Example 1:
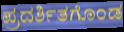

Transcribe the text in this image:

ಪ್ರದರ್ಶಿತಗೊಂಡ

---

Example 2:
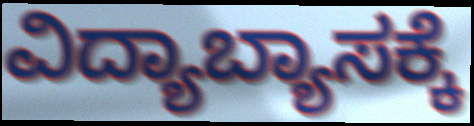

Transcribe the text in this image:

ವಿದ್ಯಾಬ್ಯಾಸಕ್ಕೆ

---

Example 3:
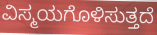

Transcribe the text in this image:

ವಿಸ್ಮಯಗೊಳಿಸುತ್ತದೆ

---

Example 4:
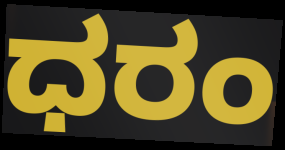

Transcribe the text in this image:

ಧರಂ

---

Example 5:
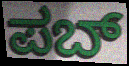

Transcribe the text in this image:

ಪಬ್